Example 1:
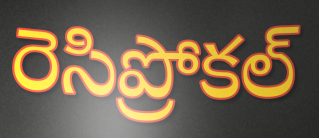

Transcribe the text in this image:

రెసిప్రోకల్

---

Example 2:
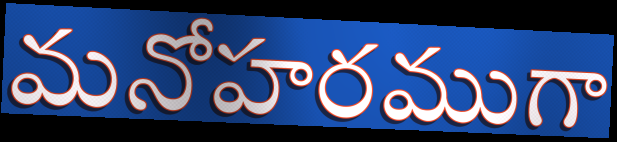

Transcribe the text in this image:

మనోహరముగా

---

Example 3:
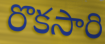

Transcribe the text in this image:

రొకసారి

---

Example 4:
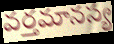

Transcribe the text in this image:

వర్తమానస్య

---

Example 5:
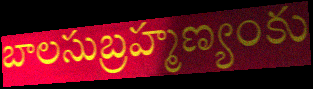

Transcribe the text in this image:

బాలసుబ్రహ్మణ్యంకు